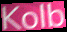
Kolb